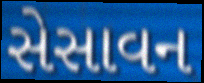
સેસાવન